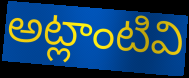
అట్లాంటివి